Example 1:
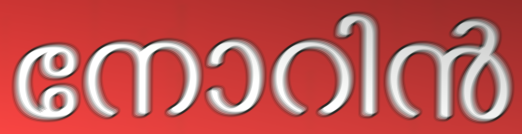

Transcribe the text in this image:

നോറിൻ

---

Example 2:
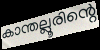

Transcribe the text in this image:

കാന്തല്ലൂരിന്റെ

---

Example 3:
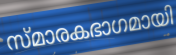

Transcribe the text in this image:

സ്മാരകഭാഗമായി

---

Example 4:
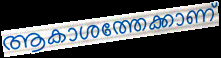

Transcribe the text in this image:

ആകാശത്തേക്കാണ്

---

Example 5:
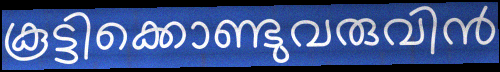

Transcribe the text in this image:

കൂട്ടിക്കൊണ്ടുവരുവിൻ